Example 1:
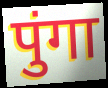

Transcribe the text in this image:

पुंगा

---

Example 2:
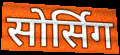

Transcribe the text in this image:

सोर्सिग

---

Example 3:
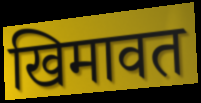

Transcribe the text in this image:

खिमावत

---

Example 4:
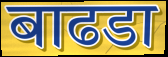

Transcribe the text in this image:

बाढडा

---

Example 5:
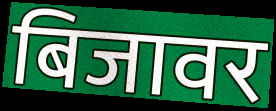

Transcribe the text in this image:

बिजावर